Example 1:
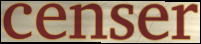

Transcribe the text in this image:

censer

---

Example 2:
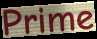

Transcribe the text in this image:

Prime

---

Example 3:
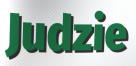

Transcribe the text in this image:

Judzie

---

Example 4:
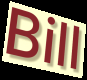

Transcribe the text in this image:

Bill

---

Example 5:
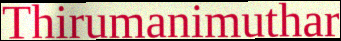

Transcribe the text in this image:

Thirumanimuthar